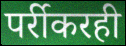
पर्रीकरही